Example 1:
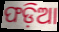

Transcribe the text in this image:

ଫଡ଼ିଆ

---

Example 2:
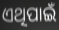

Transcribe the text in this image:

ଏଥିପାଇଁ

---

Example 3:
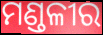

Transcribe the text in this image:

ମଣ୍ଡଳୀର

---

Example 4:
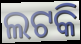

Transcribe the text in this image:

ଲଟକି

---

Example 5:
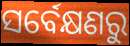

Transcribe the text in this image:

ସର୍ବେକ୍ଷଣରୁ